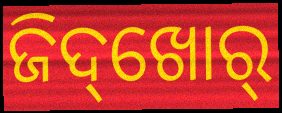
ଜିଦ୍‌ଖୋର୍